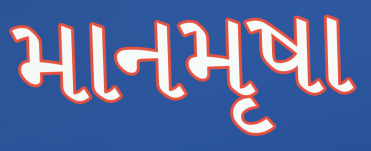
માનમૃષા